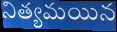
నిత్యమయిన